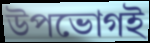
উপভোগই